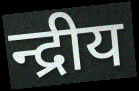
न्द्रीय